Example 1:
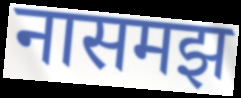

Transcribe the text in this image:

नासमझ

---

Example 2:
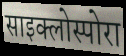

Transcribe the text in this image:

साइक्लोस्पोरा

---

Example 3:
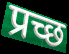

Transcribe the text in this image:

प्रच्छ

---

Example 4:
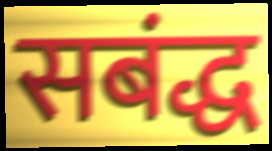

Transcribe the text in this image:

सबंद्ध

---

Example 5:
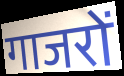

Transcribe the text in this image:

गाजरों